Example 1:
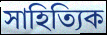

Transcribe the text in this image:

সাহিত্যিক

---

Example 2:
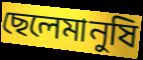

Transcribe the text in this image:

ছেলেমানুষি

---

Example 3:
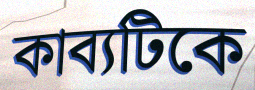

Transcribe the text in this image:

কাব্যটিকে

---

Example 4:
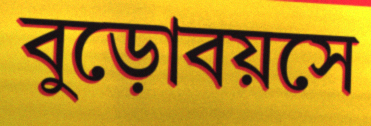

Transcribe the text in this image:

বুড়োবয়সে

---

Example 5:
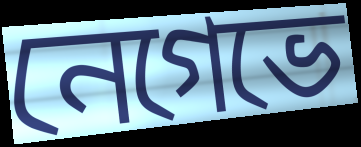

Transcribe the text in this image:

নেগেভে